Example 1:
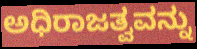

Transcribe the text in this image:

ಅಧಿರಾಜತ್ವವನ್ನು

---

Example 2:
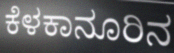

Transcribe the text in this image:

ಕೆಳಕಾನೂರಿನ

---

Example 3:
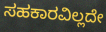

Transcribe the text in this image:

ಸಹಕಾರವಿಲ್ಲದೇ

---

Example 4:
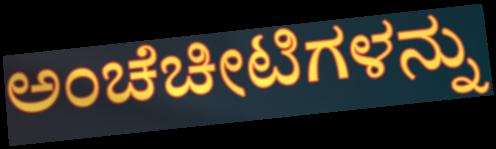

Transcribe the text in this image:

ಅಂಚೆಚೀಟಿಗಳನ್ನು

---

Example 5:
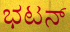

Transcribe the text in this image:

ಭಟನ್